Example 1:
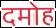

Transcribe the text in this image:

दमोह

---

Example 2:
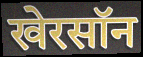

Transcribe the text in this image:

खेरसॉन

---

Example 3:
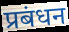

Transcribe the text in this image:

प्रबंधन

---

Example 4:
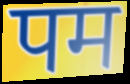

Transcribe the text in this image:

पम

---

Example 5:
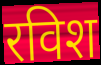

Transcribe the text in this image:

रविश